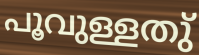
പൂവുള്ളതു്